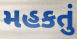
મહકતું